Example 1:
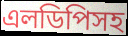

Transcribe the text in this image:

এলডিপিসহ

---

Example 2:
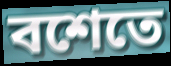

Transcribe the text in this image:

বশেতে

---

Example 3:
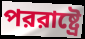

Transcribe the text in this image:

পররাষ্ট্রে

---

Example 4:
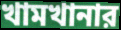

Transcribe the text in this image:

খামখানার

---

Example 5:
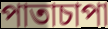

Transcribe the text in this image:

পাতাচাপা